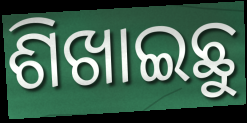
ଶିଖାଇଛୁ